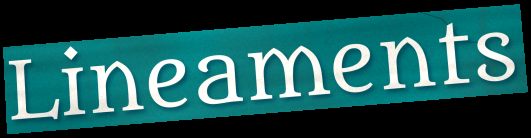
Lineaments